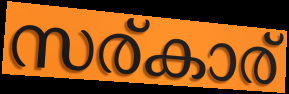
സര്കാര്